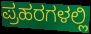
ಪ್ರಹರಗಳಲ್ಲಿ